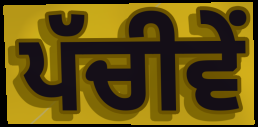
ਪੱਚੀਵੇਂ